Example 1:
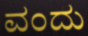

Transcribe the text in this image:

ವಂದು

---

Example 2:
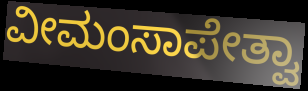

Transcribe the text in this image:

ವೀಮಂಸಾಪೇತ್ವಾ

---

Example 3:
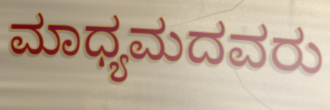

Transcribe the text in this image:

ಮಾಧ್ಯಮದವರು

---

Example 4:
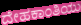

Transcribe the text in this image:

ದೇಹಕಾಂತಿಯು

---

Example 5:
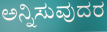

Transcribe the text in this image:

ಅನ್ನಿಸುವುದರ